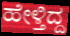
ಹೇಳ್ತಿದ್ದ